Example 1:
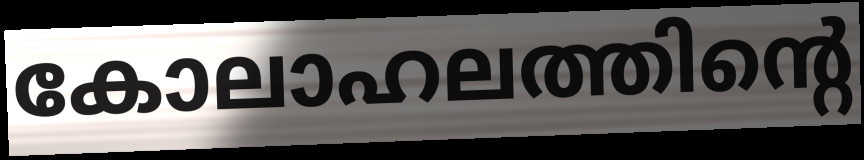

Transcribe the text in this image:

കോലാഹലത്തിന്റെ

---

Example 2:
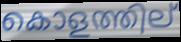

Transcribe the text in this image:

കൊളത്തില്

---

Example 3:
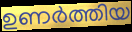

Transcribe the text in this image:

ഉണർത്തിയ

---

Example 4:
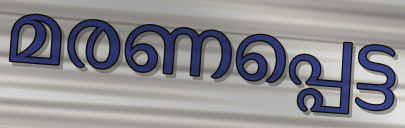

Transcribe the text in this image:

മരണപ്പെട്ട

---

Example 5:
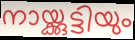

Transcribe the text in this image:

നായ്ക്കുട്ടിയും